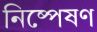
নিষ্পেষণ